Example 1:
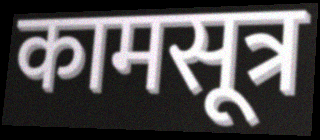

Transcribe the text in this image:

कामसूत्र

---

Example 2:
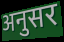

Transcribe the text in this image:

अनुसर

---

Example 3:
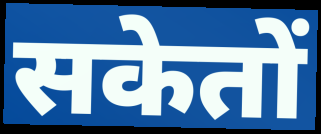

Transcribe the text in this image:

सकेतों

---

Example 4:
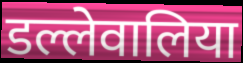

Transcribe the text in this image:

डल्लेवालिया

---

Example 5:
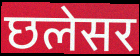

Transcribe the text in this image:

छलेसर